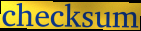
checksum